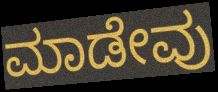
ಮಾಡೇವು